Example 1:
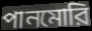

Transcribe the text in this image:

পানমোরি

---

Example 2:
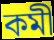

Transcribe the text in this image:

কমী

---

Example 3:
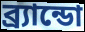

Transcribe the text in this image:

ব্র্যান্ডো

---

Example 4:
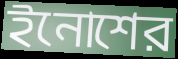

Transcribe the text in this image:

ইনোশের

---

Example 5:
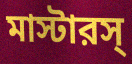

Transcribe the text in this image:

মাস্টারস্